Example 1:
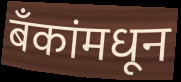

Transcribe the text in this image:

बॅंकांमधून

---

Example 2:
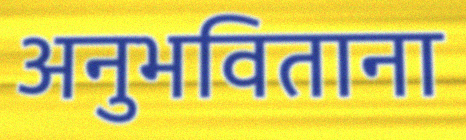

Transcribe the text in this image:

अनुभविताना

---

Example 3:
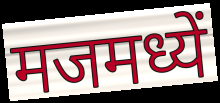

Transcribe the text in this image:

मजमध्यें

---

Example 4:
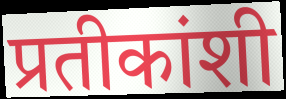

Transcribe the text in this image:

प्रतीकांशी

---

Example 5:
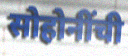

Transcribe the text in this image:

सोहोनींची